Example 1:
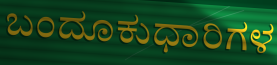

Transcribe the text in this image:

ಬಂದೂಕುಧಾರಿಗಳ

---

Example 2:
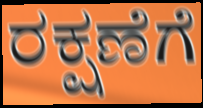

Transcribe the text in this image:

ರಕ್ಷಣೆಗೆ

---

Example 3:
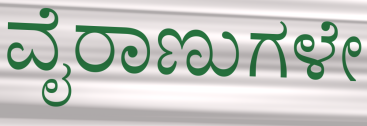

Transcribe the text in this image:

ವೈರಾಣುಗಳೇ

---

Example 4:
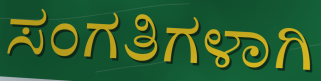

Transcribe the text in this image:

ಸಂಗತಿಗಳಾಗಿ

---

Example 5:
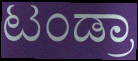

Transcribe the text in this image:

ಟಂಡ್ರಾ